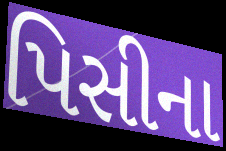
પિસીના